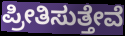
ಪ್ರೀತಿಸುತ್ತೇವೆ